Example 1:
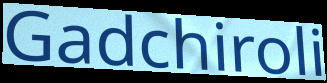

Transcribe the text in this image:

Gadchiroli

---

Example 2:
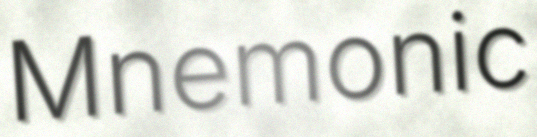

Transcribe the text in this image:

Mnemonic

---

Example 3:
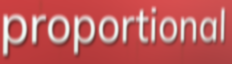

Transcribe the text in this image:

proportional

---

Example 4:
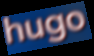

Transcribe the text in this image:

hugo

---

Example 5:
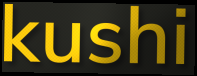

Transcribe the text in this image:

kushi